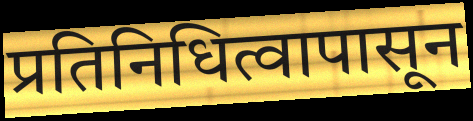
प्रतिनिधित्वापासून